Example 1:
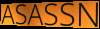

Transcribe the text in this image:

ASASSN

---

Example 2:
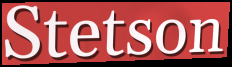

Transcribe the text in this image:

Stetson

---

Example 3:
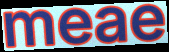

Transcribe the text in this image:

meae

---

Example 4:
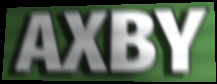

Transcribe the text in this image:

AXBY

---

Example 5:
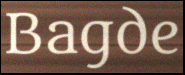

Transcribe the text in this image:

Bagde